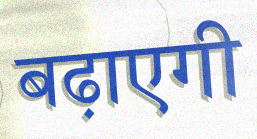
बढ़ाएगी